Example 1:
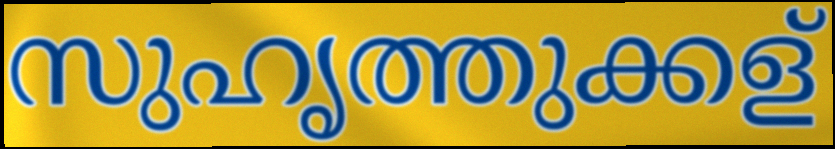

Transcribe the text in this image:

സുഹൃത്തുക്കള്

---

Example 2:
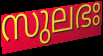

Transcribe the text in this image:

സുലഭഃ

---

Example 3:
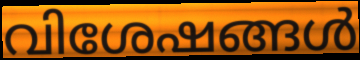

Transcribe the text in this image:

വിശേഷങ്ങൾ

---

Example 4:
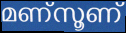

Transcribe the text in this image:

മണ്സൂണ്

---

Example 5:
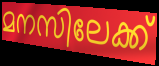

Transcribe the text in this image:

മനസിലേക്ക്